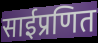
साईप्रणित